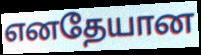
எனதேயான